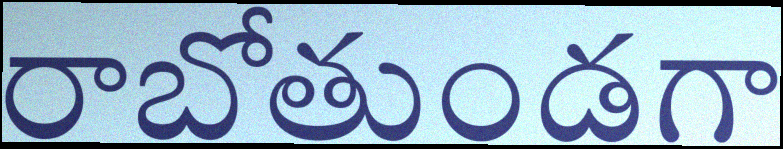
రాబోతుండగా